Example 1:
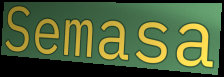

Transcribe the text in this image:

Semasa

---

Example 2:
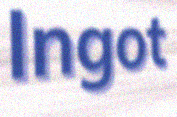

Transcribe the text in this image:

Ingot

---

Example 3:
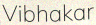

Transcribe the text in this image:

Vibhakar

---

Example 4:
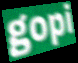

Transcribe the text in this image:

gopi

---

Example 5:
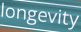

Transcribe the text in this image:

longevity